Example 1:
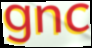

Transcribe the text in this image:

gnc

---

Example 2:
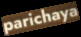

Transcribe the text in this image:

parichaya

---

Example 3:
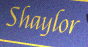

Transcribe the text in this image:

Shaylor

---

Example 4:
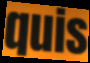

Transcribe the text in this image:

quis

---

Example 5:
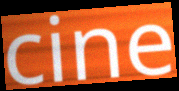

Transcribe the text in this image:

cine